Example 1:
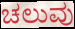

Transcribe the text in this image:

ಚಲುವು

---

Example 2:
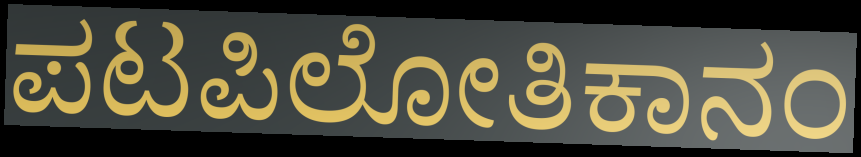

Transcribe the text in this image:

ಪಟಪಿಲೋತಿಕಾನಂ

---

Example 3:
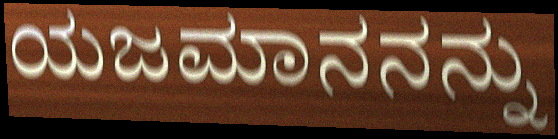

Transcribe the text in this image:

ಯಜಮಾನನನ್ನು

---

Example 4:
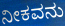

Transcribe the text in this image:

ನೀಕವನು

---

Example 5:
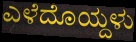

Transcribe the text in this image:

ಎಳೆದೊಯ್ದಳು